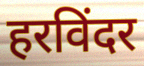
हरविंदर